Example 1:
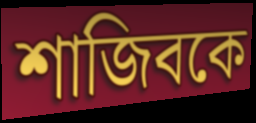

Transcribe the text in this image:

শাজিবকে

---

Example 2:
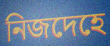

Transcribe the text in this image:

নিজদেহে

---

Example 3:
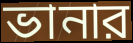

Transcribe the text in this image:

ভানার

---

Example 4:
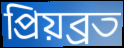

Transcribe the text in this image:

প্রিয়ব্রত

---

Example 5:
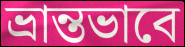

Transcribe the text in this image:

ভ্রান্তভাবে